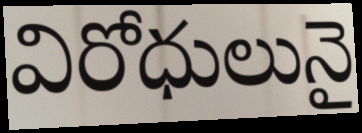
విరోధులునై